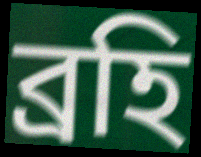
ব্রহি